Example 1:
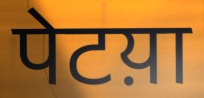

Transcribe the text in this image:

पेटय़ा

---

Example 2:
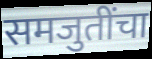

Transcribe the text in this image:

समजुतींचा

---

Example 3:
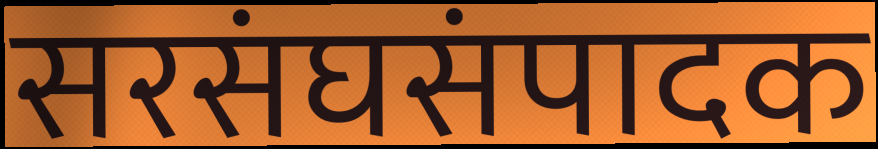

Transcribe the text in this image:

सरसंघसंपादक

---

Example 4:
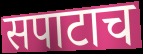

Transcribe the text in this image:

सपाटाच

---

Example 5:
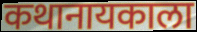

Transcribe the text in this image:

कथानायकाला